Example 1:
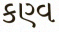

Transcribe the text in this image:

કણ્વ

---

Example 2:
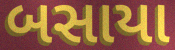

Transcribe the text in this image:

બસાયા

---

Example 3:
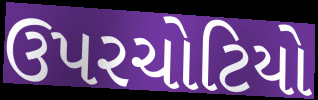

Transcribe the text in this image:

ઉપરચોટિયો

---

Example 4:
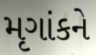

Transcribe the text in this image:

મૃગાંકને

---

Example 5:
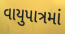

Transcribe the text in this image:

વાયુપાત્રમાં